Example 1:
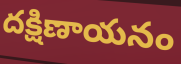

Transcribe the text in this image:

దక్షిణాయనం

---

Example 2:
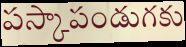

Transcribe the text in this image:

పస్కాపండుగకు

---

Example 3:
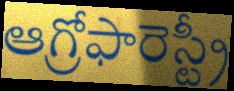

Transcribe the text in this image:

ఆగ్రోఫారెస్ట్రీ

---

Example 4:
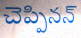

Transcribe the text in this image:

చెప్పినన్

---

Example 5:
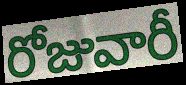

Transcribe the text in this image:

రోజువారీ